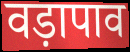
वड़ापाव